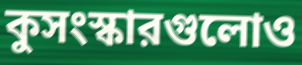
কুসংস্কারগুলোও